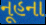
નૂહના